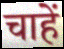
चाहें